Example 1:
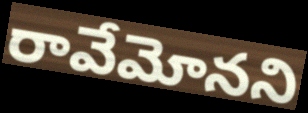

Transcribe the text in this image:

రావేమోనని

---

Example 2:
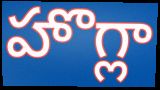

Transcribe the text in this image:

హొగ్లా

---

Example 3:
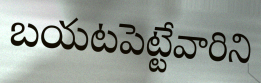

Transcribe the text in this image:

బయటపెట్టేవారిని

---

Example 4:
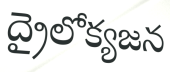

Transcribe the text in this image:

ద్రైలోక్యజన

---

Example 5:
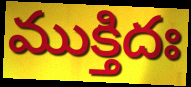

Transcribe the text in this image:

ముక్తిదః